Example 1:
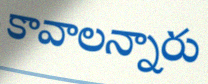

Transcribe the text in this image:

కావాలన్నారు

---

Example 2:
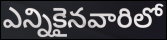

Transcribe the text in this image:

ఎన్నికైనవారిలో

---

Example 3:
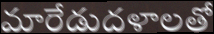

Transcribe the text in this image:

మారేడుదళాలతో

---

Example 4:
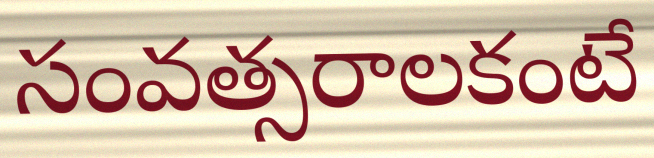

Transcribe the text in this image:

సంవత్సరాలకంటే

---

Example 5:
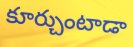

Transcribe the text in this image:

కూర్చుంటాడా